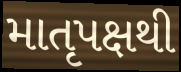
માતૃપક્ષથી